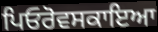
ਪਿਓਰੋਵਸਕਾਇਆ